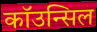
कॉउन्सिल